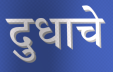
दुधाचे